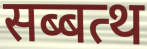
सब्बत्थ